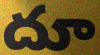
దూ